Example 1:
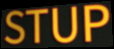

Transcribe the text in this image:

STUP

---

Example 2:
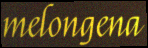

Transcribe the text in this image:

melongena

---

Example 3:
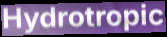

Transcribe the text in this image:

Hydrotropic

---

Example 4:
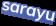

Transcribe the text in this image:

sarayu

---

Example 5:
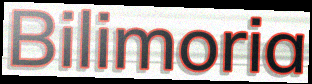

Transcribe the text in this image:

Bilimoria